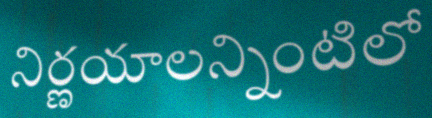
నిర్ణయాలన్నింటిలో